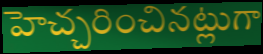
హెచ్చరించినట్లుగా